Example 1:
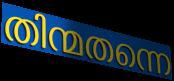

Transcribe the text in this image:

തിന്മതന്നെ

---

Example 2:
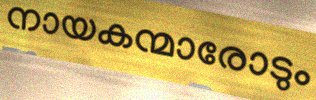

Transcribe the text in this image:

നായകന്മാരോടും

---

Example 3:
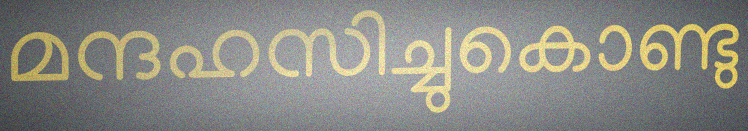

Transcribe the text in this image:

മന്ദഹസിച്ചുകൊണ്ടു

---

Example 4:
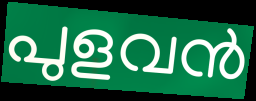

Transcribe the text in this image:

പുളവൻ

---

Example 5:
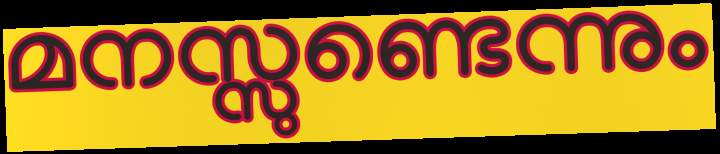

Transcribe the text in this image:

മനസ്സുണ്ടെന്നും